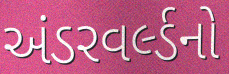
અંડરવર્લ્ડનો